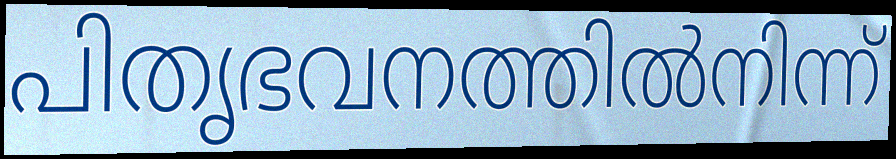
പിതൃഭവനത്തിൽനിന്ന്